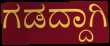
ಗಡದ್ದಾಗಿ